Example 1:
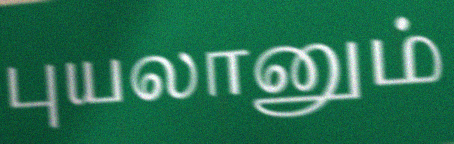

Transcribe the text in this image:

புயலானும்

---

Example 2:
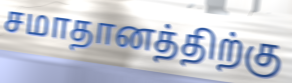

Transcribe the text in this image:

சமாதானத்திற்கு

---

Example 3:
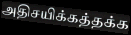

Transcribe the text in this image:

அதிசயிக்கத்தக்க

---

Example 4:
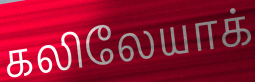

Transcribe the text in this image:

கலிலேயாக்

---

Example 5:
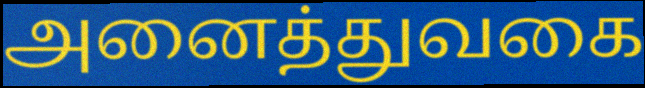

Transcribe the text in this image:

அனைத்துவகை